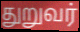
துறுவர்